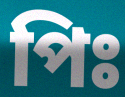
পিঃ